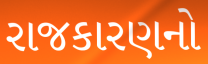
રાજકારણનો